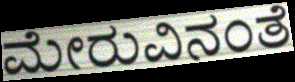
ಮೇರುವಿನಂತೆ